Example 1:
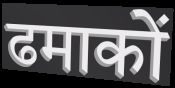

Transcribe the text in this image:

ढमाकों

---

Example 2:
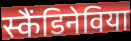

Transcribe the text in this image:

स्कैंडिनेविया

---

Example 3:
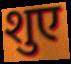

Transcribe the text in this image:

शुए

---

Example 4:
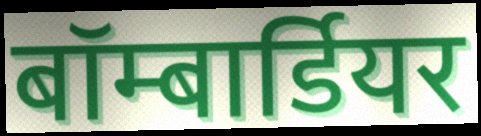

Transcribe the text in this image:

बॉम्बार्डियर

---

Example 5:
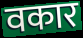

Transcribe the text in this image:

वकार